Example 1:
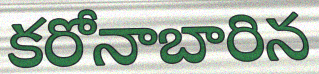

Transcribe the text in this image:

కరోనాబారిన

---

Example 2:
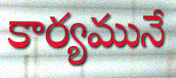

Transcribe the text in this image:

కార్యమునే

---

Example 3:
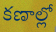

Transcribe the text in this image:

కణాల్లో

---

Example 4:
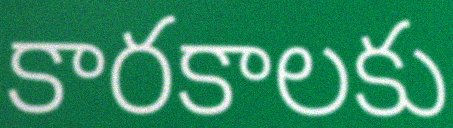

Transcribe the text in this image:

కారకాలకు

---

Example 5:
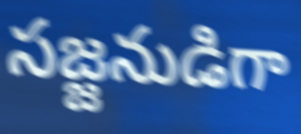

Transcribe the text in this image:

సజ్జనుడిగా